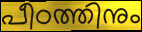
പീഠത്തിനും